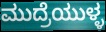
ಮುದ್ರೆಯುಳ್ಳ